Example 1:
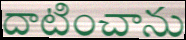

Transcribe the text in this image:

దాటించాను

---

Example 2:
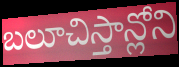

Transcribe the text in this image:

బలూచిస్తాన్లోని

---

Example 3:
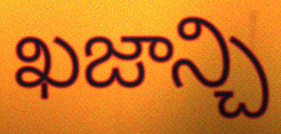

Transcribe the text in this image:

ఖజాన్చి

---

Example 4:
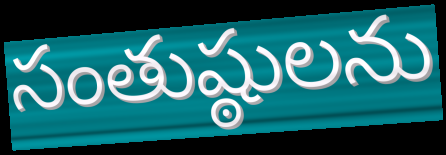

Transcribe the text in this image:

సంతుష్ఠులను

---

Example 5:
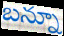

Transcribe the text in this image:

బన్నూ